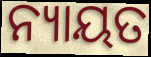
ନ୍ୟାୟତ